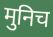
मुनिच